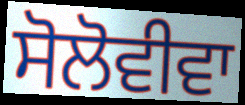
ਸੋਲੋਵੀਵਾ